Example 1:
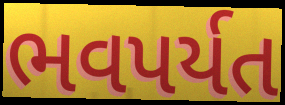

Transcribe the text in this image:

ભવપર્યત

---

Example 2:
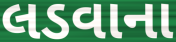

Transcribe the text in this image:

લડવાના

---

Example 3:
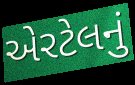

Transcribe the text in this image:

એરટેલનું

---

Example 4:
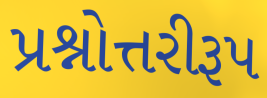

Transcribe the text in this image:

પ્રશ્નોત્તરીરૂપ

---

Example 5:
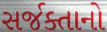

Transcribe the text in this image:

સર્જક્તાનો